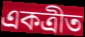
একত্ৰীত